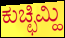
ಕುಚ್ಛಿಮ್ಹಿ